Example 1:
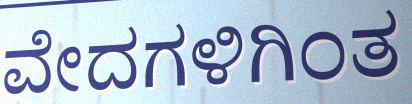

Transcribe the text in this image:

ವೇದಗಳಿಗಿಂತ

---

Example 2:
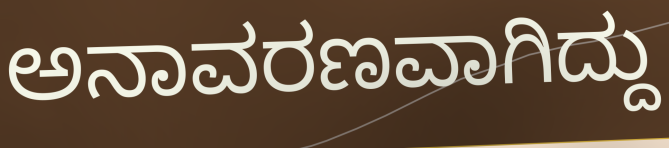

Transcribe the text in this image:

ಅನಾವರಣವಾಗಿದ್ದು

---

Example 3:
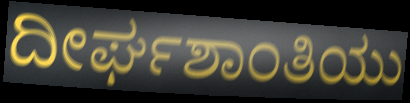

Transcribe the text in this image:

ದೀರ್ಘಶಾಂತಿಯು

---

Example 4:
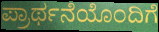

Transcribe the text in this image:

ಪ್ರಾರ್ಥನೆಯೊಂದಿಗೆ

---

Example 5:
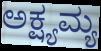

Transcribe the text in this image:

ಅಕ್ಷ್ಯಮ್ಯ